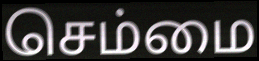
செம்மை